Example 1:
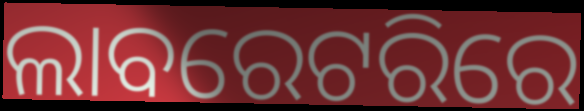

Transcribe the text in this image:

ଲାବରେଟରିରେ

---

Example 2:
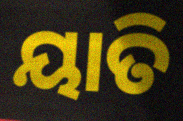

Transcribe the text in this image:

ୟାତି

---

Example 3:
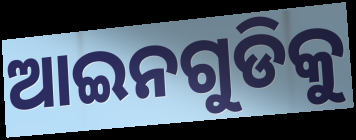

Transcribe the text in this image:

ଆଇନଗୁଡିକୁ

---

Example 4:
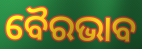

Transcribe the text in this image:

ବୈରଭାବ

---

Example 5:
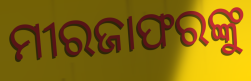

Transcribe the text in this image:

ମୀରଜାଫରଙ୍କୁ